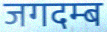
जगदम्ब